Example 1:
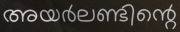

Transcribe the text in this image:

അയർലണ്ടിന്റെ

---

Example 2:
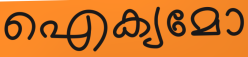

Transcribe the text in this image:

ഐക്യമോ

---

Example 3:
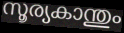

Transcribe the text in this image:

സൂര്യകാന്തും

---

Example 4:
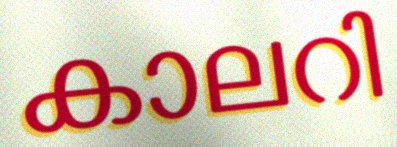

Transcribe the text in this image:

കാലറി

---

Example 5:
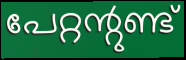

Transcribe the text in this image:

പേറ്റന്റുണ്ട്